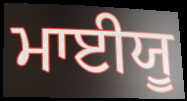
ਮਾਈਯੂ